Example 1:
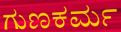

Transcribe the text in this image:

ಗುಣಕರ್ಮ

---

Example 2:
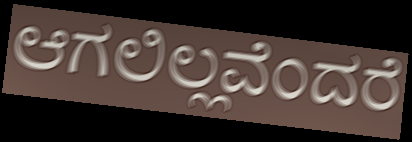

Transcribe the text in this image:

ಆಗಲಿಲ್ಲವೆಂದರೆ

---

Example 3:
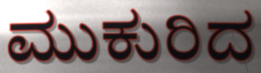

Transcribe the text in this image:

ಮುಕುರಿದ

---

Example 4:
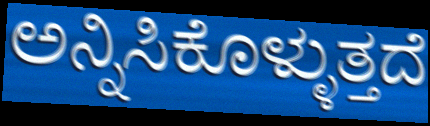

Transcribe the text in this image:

ಅನ್ನಿಸಿಕೊಳ್ಳುತ್ತದೆ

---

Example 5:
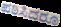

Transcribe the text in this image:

ಪಠಿಸಿದರೂ